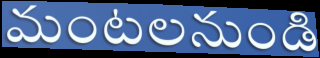
మంటలనుండి